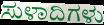
ಸುಳಾದಿಗಳು